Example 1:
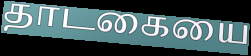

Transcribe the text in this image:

தாடகையை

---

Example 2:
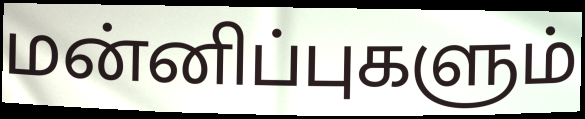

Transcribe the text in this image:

மன்னிப்புகளும்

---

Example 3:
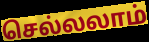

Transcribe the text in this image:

செல்லலாம்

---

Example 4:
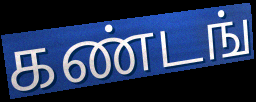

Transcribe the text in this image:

கண்டங்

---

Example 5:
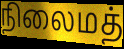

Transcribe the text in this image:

நிலைமத்